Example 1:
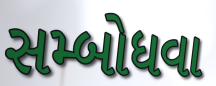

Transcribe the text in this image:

સમ્બોધવા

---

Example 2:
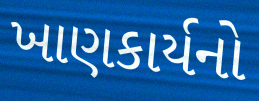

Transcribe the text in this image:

ખાણકાર્યનો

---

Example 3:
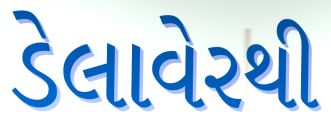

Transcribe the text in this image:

ડેલાવેરથી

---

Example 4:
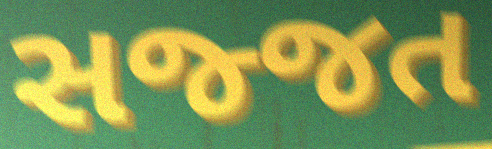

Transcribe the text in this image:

સજ્જત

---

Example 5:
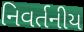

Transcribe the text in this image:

નિવર્તનીય